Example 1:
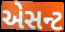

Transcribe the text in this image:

એસન્ટ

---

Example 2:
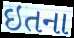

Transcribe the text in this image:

ઇતના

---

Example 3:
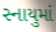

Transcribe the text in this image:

સ્નાયુમાં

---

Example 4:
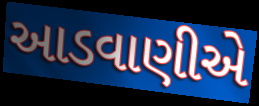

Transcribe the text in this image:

આડવાણીએ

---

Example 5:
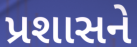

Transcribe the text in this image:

પ્રશાસને